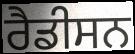
ਰੈਡੀਸਨ